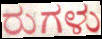
ರುಗಳು